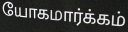
யோகமார்க்கம்